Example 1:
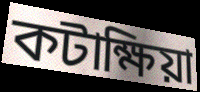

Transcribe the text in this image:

কটাক্ষিয়া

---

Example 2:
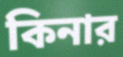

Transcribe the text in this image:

কিনার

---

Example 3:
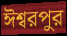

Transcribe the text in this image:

ঈশ্বরপুর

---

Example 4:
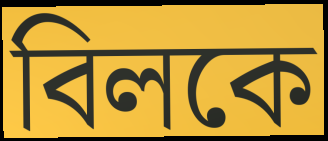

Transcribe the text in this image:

বিলকে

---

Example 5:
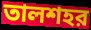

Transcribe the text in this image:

তালশহর